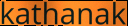
kathanak